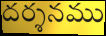
దర్శనము